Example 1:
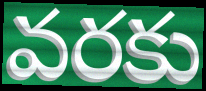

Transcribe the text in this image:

వరకు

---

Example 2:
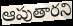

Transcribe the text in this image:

ఆపుతారని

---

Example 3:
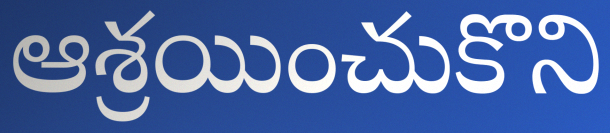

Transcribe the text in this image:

ఆశ్రయించుకొని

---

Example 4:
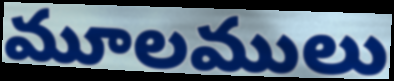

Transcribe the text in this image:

మూలములు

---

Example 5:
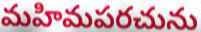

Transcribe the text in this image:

మహిమపరచును